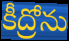
కీద్రోను